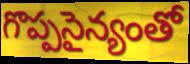
గొప్పసైన్యంతో